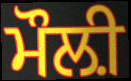
ਮੌਲ਼ੀ